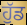
ਹੁੱਡ